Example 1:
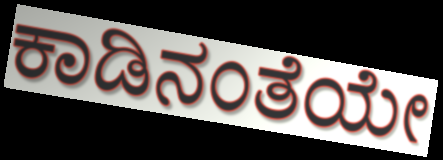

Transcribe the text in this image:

ಕಾಡಿನಂತೆಯೇ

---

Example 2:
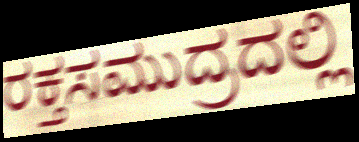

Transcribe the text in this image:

ರಕ್ತಸಮುದ್ರದಲ್ಲಿ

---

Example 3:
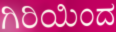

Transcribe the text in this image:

ಗಿರಿಯಿಂದ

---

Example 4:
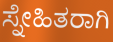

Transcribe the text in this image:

ಸ್ನೇಹಿತರಾಗಿ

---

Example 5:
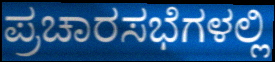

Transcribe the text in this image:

ಪ್ರಚಾರಸಭೆಗಳಲ್ಲಿ